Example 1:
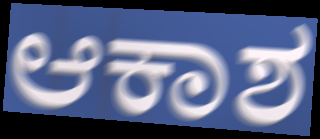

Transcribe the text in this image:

ಆಕಾಶ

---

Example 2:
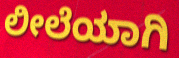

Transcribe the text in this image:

ಲೀಲೆಯಾಗಿ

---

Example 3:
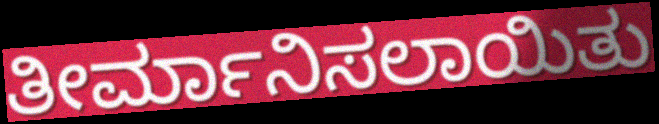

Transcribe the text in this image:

ತೀರ್ಮಾನಿಸಲಾಯಿತು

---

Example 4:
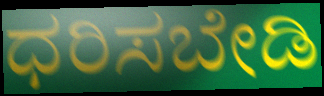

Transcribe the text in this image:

ಧರಿಸಬೇಡಿ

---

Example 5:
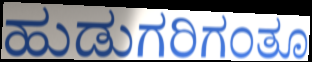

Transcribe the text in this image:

ಹುಡುಗರಿಗಂತೂ